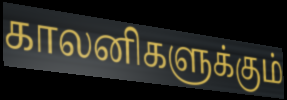
காலனிகளுக்கும்